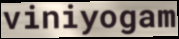
viniyogam